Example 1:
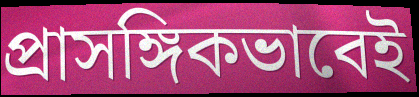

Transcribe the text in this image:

প্রাসঙ্গিকভাবেই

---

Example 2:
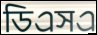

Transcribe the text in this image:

ডিএসএ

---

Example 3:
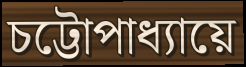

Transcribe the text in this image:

চট্টোপাধ্যায়ে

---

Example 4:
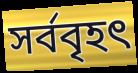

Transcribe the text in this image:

সর্ববৃহৎ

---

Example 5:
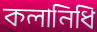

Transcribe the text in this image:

কলানিধি